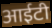
आईटी